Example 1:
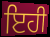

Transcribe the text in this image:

ਇਹੀ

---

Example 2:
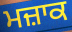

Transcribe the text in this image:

ਮਜ਼ਾਕ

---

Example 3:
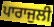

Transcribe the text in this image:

ਪਾਰਾਜੁਲੀ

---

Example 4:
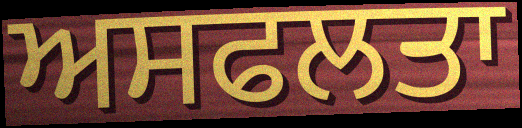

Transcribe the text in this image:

ਅਸਫਲਤਾ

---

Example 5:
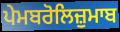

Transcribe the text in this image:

ਪੇਮਬਰੋਲਿਜ਼ੁਮਾਬ